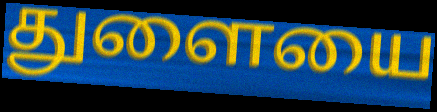
துளையை